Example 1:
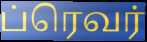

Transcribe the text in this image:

ப்ரெவர்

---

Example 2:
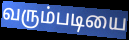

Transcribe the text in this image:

வரும்படியை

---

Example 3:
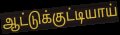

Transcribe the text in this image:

ஆட்டுக்குட்டியாய்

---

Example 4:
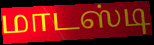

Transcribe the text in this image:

மாடஸ்டி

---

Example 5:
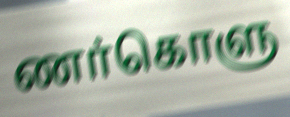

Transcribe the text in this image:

ணர்கொளு